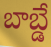
బాబ్డే